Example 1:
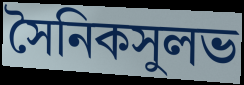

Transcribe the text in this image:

সৈনিকসুলভ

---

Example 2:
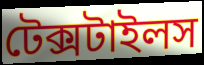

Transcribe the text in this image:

টেক্সটাইলস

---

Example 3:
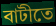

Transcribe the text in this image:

বাটীতে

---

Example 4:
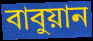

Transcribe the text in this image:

বাবুয়ান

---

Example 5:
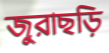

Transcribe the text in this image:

জুরাছড়ি